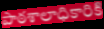
పాఠశాలాధికారికి